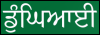
ਡੁੰਘਿਆਈ